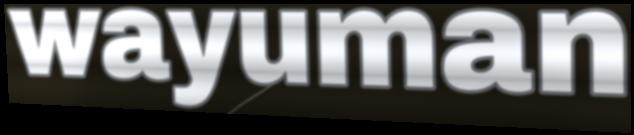
wayuman